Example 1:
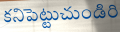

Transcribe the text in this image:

కనిపెట్టుచుండిరి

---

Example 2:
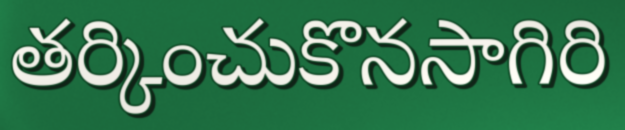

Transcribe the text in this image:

తర్కించుకొనసాగిరి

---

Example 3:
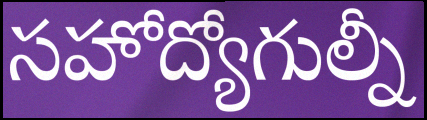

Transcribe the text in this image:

సహోద్యోగుల్నీ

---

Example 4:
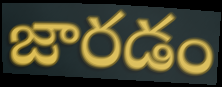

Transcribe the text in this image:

జారడం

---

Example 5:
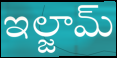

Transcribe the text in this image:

ఇల్జామ్